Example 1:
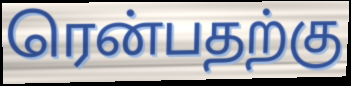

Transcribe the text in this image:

ரென்பதற்கு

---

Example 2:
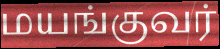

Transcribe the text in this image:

மயங்குவர்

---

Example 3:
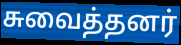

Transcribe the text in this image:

சுவைத்தனர்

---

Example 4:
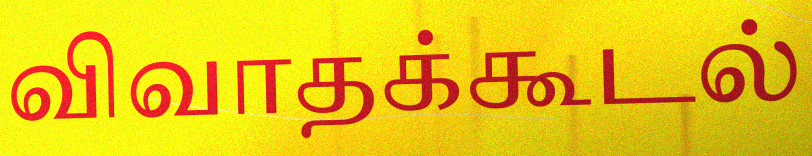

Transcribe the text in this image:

விவாதக்கூடல்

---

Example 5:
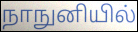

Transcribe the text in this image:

நாநுனியில்